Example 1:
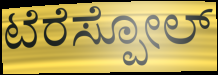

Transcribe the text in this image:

ಟೆರೆಸ್ಪೋಲ್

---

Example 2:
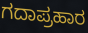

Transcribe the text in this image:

ಗದಾಪ್ರಹಾರ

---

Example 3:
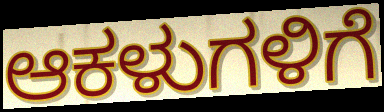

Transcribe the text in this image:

ಆಕಳುಗಳಿಗೆ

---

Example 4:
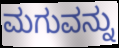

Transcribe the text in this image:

ಮಗುವನ್ನು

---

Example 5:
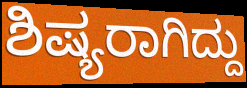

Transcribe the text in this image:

ಶಿಷ್ಯರಾಗಿದ್ದು